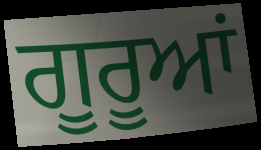
ਗੂਰੂਆਂ